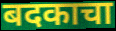
बदकाचा